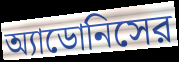
অ্যাডোনিসের